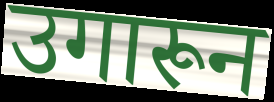
उगारून